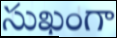
సుఖంగా